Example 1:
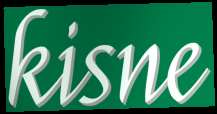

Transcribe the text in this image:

kisne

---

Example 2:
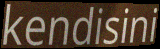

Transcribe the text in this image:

kendisini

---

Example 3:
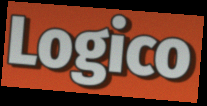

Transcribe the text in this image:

Logico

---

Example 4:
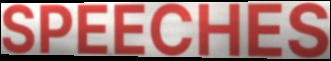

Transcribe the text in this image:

SPEECHES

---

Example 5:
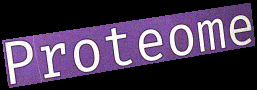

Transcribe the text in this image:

Proteome